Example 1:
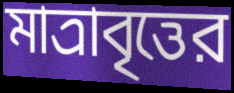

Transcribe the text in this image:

মাত্রাবৃত্তের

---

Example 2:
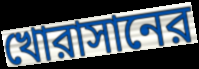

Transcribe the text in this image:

খোরাসানের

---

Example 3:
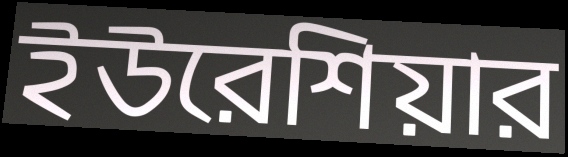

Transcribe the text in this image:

ইউরেশিয়ার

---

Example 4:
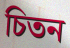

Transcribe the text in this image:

চিতন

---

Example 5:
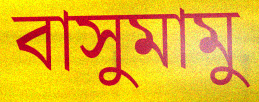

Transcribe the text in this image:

বাসুমামু